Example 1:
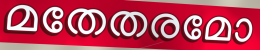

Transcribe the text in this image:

മതേതരമോ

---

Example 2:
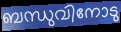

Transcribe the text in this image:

ബന്ധുവിനോടു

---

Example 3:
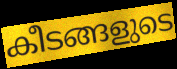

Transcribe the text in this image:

കീടങ്ങളുടെ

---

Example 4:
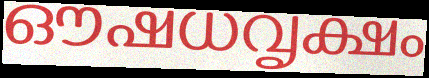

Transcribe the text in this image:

ഔഷധവൃക്ഷം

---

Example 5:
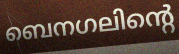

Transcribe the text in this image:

ബെനഗലിന്റെ